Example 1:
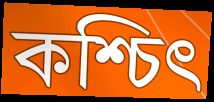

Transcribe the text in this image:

কশ্চিৎ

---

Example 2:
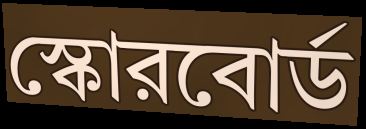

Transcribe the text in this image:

স্কোরবোর্ড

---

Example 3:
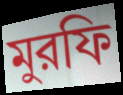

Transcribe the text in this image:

মুরফি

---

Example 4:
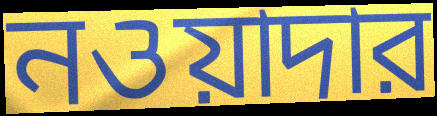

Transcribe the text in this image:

নওয়াদার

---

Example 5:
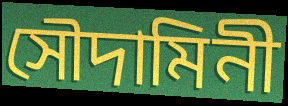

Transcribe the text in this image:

সৌদামিনী